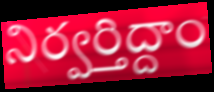
నిర్వర్తిద్దాం